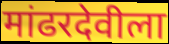
मांढरदेवीला